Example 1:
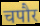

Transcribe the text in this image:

चपौर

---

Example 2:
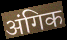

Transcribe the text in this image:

अंगिक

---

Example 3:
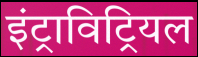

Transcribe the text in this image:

इंट्राविट्रियल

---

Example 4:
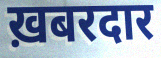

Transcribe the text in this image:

ख़बरदार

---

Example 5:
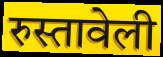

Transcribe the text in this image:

रुस्तावेली